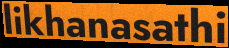
likhanasathi